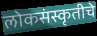
लोकसंस्कृतीचे